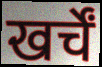
खर्चें